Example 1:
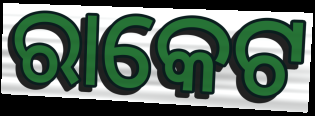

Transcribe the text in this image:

ରାକେଟ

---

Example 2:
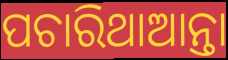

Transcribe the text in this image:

ପଚାରିଥାଆନ୍ତା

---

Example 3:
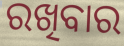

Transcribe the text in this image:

ରଖିବାର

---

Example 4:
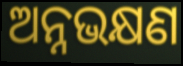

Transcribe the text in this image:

ଅନ୍ନଭକ୍ଷଣ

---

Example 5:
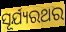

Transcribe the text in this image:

ସୂର୍ଯ୍ୟରଥର